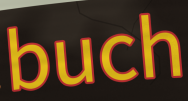
buch